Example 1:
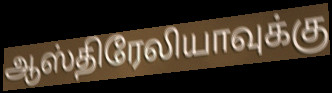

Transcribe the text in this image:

ஆஸ்திரேலியாவுக்கு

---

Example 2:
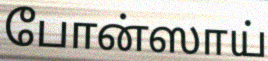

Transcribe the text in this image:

போன்ஸாய்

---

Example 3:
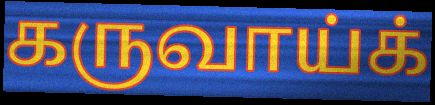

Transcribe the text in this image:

கருவாய்க்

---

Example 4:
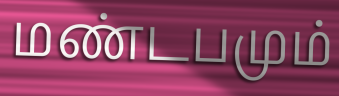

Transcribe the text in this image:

மண்டபமும்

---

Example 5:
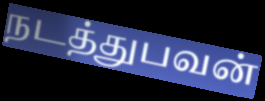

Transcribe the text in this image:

நடத்துபவன்